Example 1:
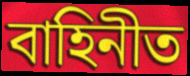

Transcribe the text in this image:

বাহিনীত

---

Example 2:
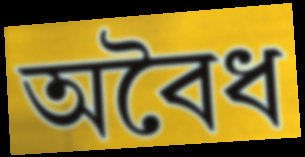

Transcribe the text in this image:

অবৈধ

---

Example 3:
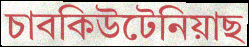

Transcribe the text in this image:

চাবকিউটেনিয়াছ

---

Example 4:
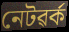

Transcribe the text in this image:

নেটৱৰ্ক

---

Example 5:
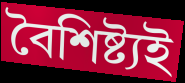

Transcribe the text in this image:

বৈশিষ্ট্যই